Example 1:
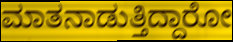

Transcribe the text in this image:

ಮಾತನಾಡುತ್ತಿದ್ದಾರೋ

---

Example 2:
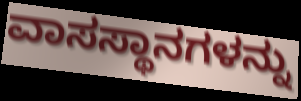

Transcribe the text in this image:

ವಾಸಸ್ಥಾನಗಳನ್ನು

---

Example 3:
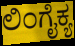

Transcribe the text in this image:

ಲಿಂಗೈಕ್ಯ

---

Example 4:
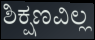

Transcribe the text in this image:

ಶಿಕ್ಷಣವಿಲ್ಲ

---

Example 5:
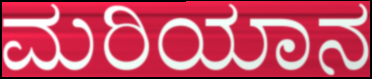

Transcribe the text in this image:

ಮರಿಯಾನ